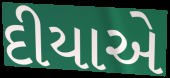
દીયાએ